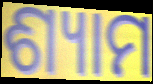
ଶ୍ୟାମ